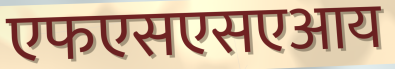
एफएसएसएआय